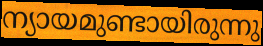
ന്യായമുണ്ടായിരുന്നു